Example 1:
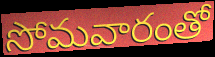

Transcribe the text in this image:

సోమవారంతో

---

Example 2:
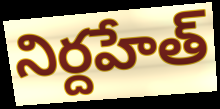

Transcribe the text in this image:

నిర్దహేత్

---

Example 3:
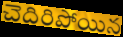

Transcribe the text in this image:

చెదిరిపోయిన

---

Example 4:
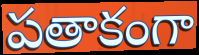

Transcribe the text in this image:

పతాకంగా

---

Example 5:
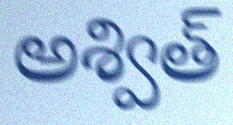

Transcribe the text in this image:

అశ్విత్